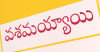
వశమయ్యాయి